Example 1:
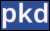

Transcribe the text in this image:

pkd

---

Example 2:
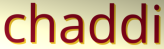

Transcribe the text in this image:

chaddi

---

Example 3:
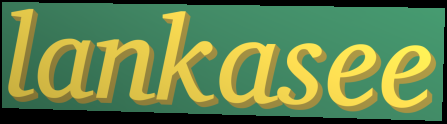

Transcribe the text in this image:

lankasee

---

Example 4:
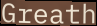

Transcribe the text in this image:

Greath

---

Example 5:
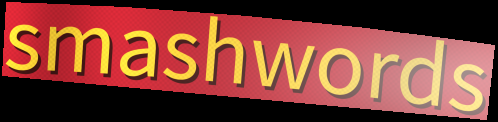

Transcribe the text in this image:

smashwords